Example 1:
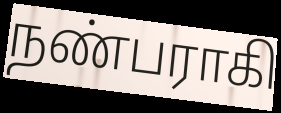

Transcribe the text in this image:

நண்பராகி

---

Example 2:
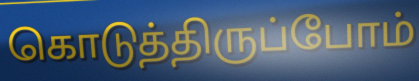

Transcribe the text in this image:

கொடுத்திருப்போம்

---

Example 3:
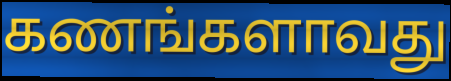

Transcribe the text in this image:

கணங்களாவது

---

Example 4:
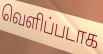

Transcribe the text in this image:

வெளிப்படாக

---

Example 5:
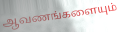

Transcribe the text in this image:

ஆவணங்களையும்